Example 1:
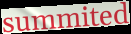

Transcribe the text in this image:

summited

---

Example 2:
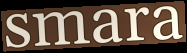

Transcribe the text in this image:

smara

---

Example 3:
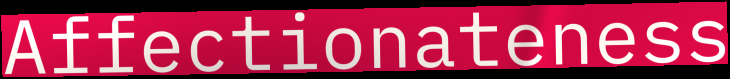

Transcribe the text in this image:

Affectionateness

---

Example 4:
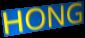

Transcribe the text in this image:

HONG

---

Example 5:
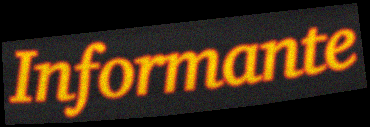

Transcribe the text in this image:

Informante